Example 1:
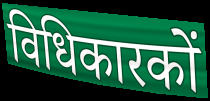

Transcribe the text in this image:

विधिकारकों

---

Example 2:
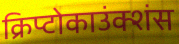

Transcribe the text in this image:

क्रिप्टोकाउंक्शंस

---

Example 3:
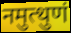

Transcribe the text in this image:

नमुत्थुणं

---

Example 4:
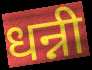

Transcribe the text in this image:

धन्नी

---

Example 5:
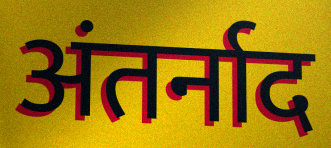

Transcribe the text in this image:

अंतर्नाद